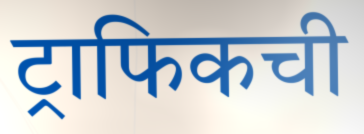
ट्राफिकची